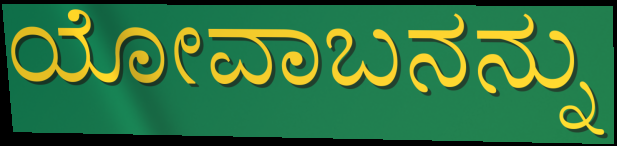
ಯೋವಾಬನನ್ನು